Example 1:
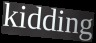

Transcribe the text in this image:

kidding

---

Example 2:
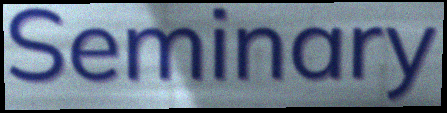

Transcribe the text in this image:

Seminary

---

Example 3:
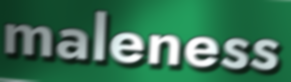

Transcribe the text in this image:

maleness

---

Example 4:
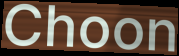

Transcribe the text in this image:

Choon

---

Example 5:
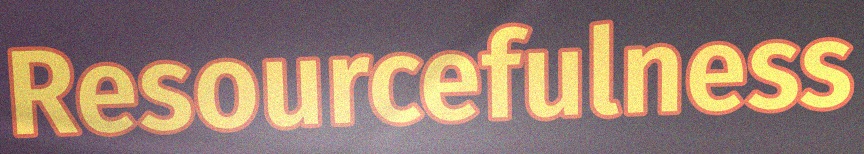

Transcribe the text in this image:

Resourcefulness